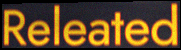
Releated